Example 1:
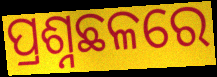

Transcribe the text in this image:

ପ୍ରଶ୍ନଛଳରେ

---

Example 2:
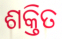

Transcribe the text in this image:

ଶକ୍ତିତ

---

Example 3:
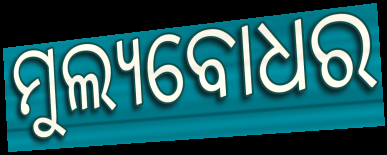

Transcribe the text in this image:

ମୁଲ୍ୟବୋଧର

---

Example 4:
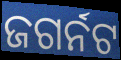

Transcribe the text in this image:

ଜଗର୍ନଟ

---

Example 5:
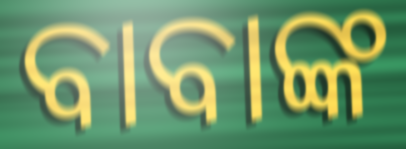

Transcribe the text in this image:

ବାବାଙ୍କ